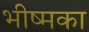
भीष्मका